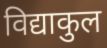
विद्याकुल